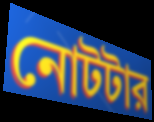
নোটটার